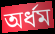
অর্ধম